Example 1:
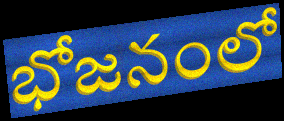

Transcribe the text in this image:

భోజనంలో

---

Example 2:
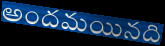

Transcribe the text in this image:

అందమయినది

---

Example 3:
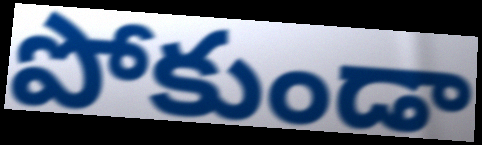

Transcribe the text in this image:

పోకుండా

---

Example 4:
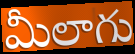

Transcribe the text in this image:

మీలాగు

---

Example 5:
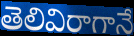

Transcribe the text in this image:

తెలివిరాగానే